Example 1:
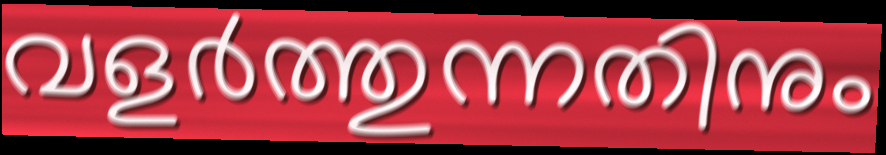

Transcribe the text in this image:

വളർത്തുന്നതിനും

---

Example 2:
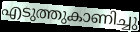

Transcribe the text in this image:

എടുത്തുകാണിച്ചു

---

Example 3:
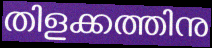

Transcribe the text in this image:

തിളക്കത്തിനു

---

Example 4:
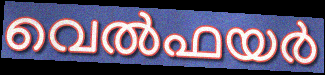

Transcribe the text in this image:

വെൽഫയർ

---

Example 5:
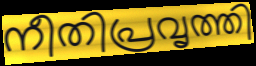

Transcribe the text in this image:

നീതിപ്രവൃത്തി